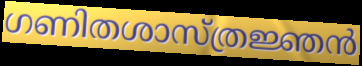
ഗണിതശാസ്ത്രജ്ഞൻ